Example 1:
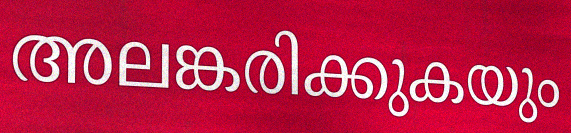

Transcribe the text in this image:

അലങ്കരിക്കുകയും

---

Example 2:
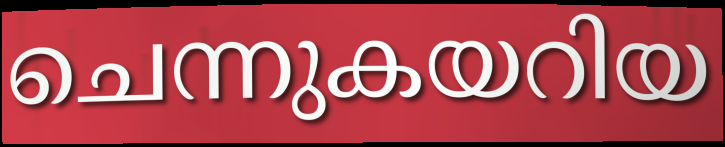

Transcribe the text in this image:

ചെന്നുകയറിയ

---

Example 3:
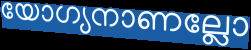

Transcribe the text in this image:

യോഗ്യനാണല്ലോ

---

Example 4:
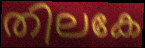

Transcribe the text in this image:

തിലകേ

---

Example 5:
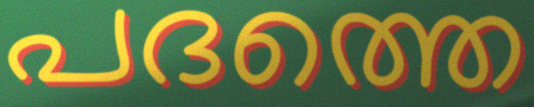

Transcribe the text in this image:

പദത്തെ